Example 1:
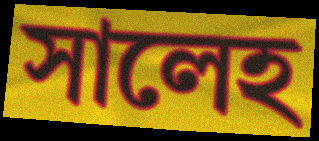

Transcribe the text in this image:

সালেহ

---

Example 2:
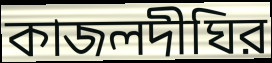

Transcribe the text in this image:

কাজলদীঘির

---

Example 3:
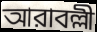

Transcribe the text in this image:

আরাবল্লী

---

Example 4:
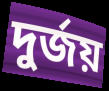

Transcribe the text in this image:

দুর্জয়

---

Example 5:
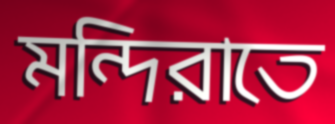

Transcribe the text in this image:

মন্দিরাতে